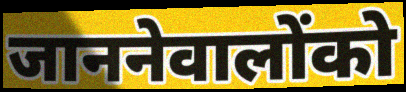
जाननेवालोंको